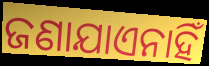
ଜଣାଯାଏନାହିଁ